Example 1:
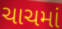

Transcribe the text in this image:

ચાચમાં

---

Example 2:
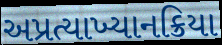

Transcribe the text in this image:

અપ્રત્યાખ્યાનક્રિયા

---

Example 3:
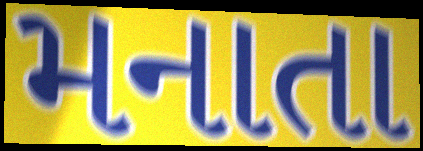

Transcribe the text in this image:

મનાતા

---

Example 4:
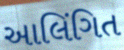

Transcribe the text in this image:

આલિંગિત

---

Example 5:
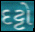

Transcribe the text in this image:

દટ્ટો